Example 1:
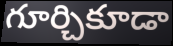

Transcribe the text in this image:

గూర్చికూడా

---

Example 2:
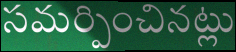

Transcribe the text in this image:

సమర్పించినట్లు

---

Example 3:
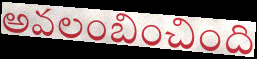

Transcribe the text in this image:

అవలంబించింది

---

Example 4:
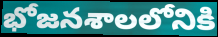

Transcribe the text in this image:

భోజనశాలలోనికి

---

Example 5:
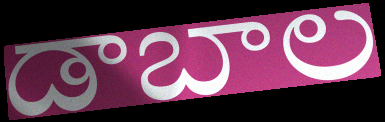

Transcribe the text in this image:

డాబాల